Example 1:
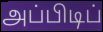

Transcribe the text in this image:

அப்பிடிப்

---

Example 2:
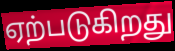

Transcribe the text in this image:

ஏற்படுகிறது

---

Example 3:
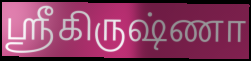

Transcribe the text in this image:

ஸ்ரீகிருஷ்ணா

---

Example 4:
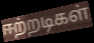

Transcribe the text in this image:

ஈற்றடிகள்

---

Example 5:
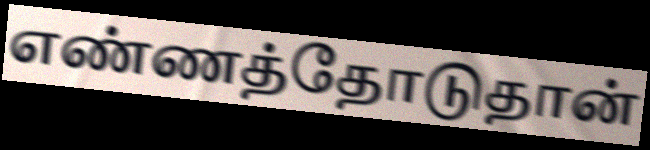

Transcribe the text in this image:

எண்ணத்தோடுதான்